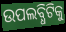
ଉପଲବ୍ଧିଟିକୁ